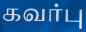
கவர்பு